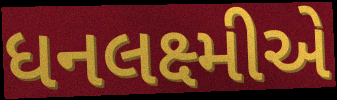
ધનલક્ષ્મીએ